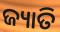
ଜ୍ୟାତି